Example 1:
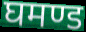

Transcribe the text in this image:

घमण्ड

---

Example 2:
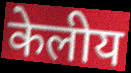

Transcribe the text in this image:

केलीय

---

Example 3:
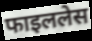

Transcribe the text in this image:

फाइललेस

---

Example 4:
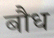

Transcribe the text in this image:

बौध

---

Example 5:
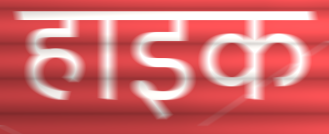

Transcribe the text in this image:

हाइक